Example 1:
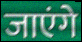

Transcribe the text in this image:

जाएंगे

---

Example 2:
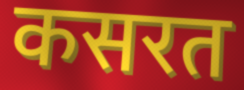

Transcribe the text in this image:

कसरत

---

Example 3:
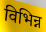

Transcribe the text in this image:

विभिन्न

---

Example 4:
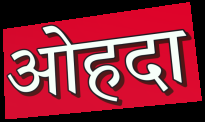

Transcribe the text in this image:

ओहदा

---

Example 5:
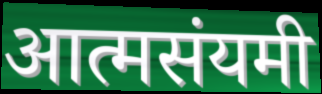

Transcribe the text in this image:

आत्मसंयमी